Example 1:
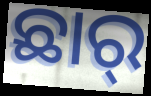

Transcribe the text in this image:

ଛାର୍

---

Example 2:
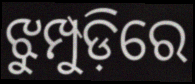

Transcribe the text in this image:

ଝୁମ୍ପୁଡ଼ିରେ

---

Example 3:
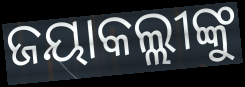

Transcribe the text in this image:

ଜୟାକଲ୍ଲୀଙ୍କୁ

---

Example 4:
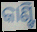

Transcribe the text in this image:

କାଣ୍ଟି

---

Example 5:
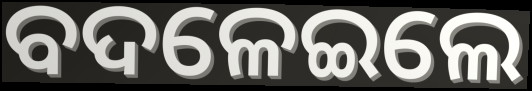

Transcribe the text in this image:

ବଦଳେଇଲେ